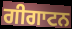
ਗੀਗਾਟਨ